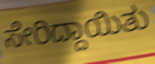
ಸೇರಿದ್ದಾಯಿತು